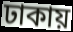
ঢাকায়